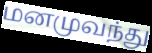
மனமுவந்து